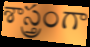
శాస్త్రంగా